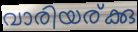
വാരിയര്ക്കു